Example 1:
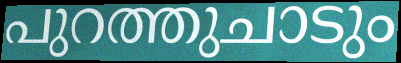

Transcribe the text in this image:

പുറത്തുചാടും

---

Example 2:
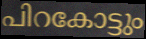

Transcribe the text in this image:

പിറകോട്ടും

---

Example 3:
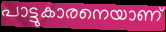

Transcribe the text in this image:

പാട്ടുകാരനെയാണ്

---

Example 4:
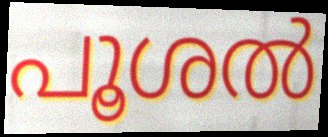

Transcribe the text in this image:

പൂശൽ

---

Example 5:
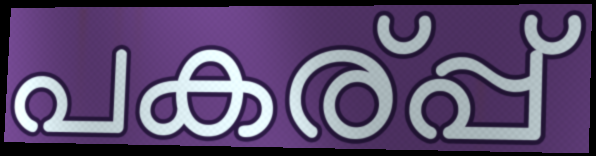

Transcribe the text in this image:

പകര്പ്പ്